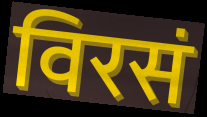
विरसं